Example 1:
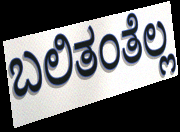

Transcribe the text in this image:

ಬಲಿತಂತೆಲ್ಲ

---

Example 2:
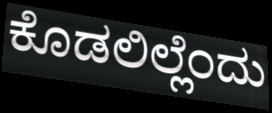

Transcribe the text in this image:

ಕೊಡಲಿಲ್ಲೆಂದು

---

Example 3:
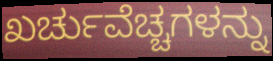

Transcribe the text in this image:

ಖರ್ಚುವೆಚ್ಚಗಳನ್ನು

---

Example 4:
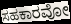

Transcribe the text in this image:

ಸಹಕಾರವೋ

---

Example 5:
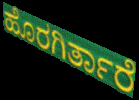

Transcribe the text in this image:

ಹೊರಗಿರ್ತಾರೆ